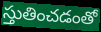
స్తుతించడంతో